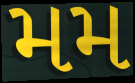
મમ